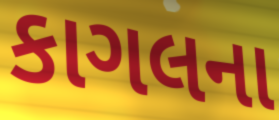
કાગલના